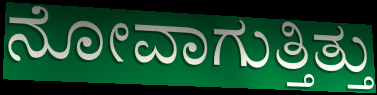
ನೋವಾಗುತ್ತಿತ್ತು